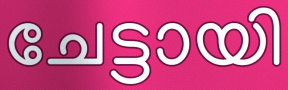
ചേട്ടായി